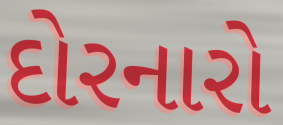
દોરનારો